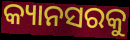
କ୍ୟାନସରକୁ